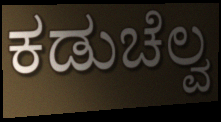
ಕಡುಚೆಲ್ವ